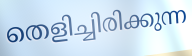
തെളിച്ചിരിക്കുന്ന